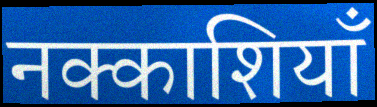
नक्काशियाँ